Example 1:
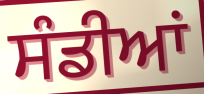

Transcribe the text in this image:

ਸੰਡੀਆਂ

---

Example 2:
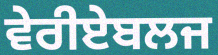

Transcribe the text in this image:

ਵੇਰੀਏਬਲਜ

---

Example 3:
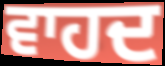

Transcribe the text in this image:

ਵਾਹਦ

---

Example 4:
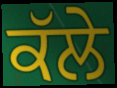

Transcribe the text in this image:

ਕੱਲੇ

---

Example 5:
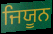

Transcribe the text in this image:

ਜਿਯੂਨ